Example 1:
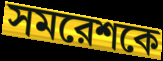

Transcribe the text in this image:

সমরেশকে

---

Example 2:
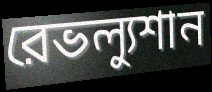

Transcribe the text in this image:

রেভল্যুশান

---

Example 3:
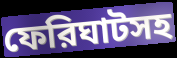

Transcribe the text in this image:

ফেরিঘাটসহ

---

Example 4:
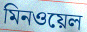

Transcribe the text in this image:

মিনওয়েল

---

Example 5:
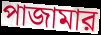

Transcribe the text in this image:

পাজামার